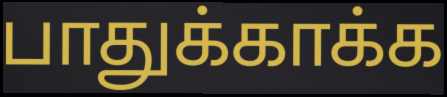
பாதுக்காக்க